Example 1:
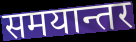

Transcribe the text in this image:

समयान्तर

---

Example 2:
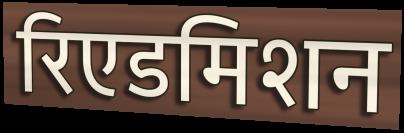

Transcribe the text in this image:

रिएडमिशन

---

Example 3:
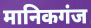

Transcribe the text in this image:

मानिकगंज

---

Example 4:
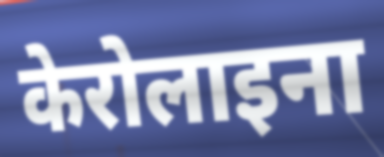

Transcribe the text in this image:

केरोलाइना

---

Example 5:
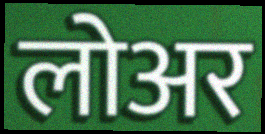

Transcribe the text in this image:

लोअर